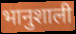
भानुशाली